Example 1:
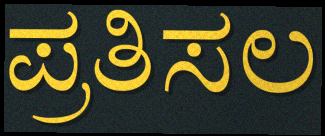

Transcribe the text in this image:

ಪ್ರತಿಸಲ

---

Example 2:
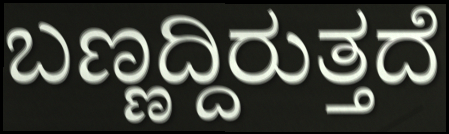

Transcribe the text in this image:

ಬಣ್ಣದ್ದಿರುತ್ತದೆ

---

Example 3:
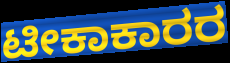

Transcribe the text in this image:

ಟೀಕಾಕಾರರ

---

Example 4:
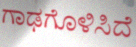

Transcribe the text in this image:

ಗಾಢಗೊಳಿಸಿದೆ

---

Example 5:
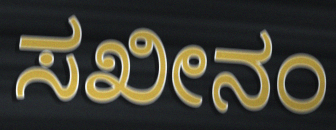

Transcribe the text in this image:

ಸಖೀನಂ